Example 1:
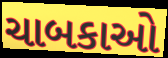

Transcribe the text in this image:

ચાબકાઓ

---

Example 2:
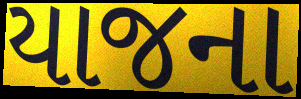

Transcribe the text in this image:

યાજના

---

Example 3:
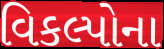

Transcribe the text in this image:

વિકલ્પોના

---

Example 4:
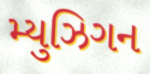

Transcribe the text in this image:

મ્યુઝિગન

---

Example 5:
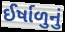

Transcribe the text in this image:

ઈર્ષાળુનું